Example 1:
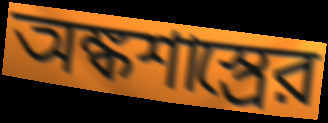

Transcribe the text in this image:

অঙ্কশাস্ত্রের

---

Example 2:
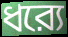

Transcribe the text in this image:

ধর‍্যে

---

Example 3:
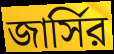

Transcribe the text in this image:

জার্সির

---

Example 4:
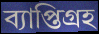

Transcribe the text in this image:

ব্যাপ্তিগ্রহ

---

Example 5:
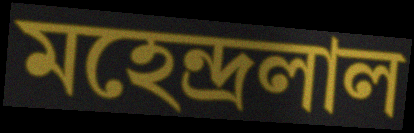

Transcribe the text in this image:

মহেন্দ্রলাল